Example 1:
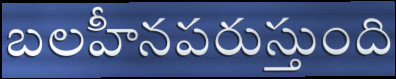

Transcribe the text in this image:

బలహీనపరుస్తుంది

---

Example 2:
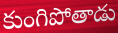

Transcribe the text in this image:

కుంగిపోతాడు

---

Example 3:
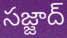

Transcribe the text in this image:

సజ్జాద్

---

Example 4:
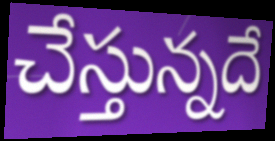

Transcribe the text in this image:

చేస్తున్నదే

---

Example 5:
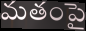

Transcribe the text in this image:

మతంపై